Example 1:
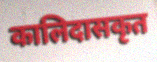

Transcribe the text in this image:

कालिदासकृत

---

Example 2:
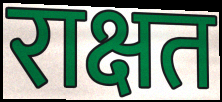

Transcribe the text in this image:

राक्षत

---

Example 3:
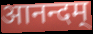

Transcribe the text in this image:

आनन्दम्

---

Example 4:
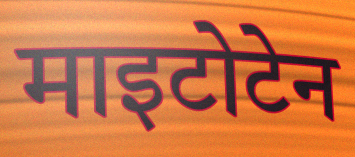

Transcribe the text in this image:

माइटोटेन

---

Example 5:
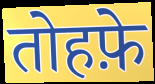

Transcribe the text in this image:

तोहफ़े